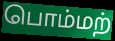
பொம்மற்